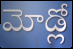
మోడ్లో